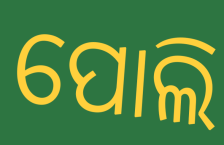
ପୋଲି